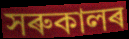
সৰুকালৰ